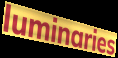
luminaries